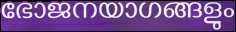
ഭോജനയാഗങ്ങളും